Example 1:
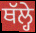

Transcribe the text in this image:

ਥੱਲ੍ਹੇ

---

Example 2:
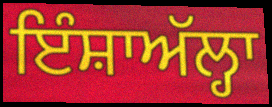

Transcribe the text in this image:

ਇੰਸ਼ਾਅੱਲ੍ਹਾ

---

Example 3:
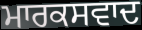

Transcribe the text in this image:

ਮਾਰਕਸਵਾਦ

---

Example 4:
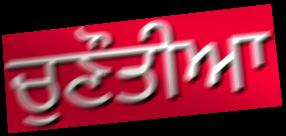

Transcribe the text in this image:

ਚੁਣੌਤੀਆ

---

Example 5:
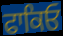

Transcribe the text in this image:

ਫਾਕਿਓ